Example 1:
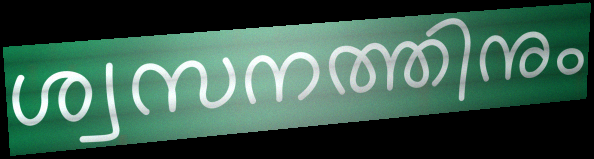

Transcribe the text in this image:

ശ്വസനത്തിനും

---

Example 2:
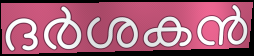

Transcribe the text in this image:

ദർശകൻ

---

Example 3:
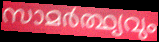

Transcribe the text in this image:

സാമർത്ഥ്യവും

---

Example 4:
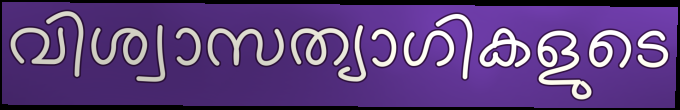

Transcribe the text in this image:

വിശ്വാസത്യാഗികളുടെ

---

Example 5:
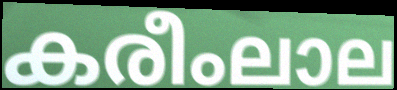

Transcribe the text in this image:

കരീംലാല